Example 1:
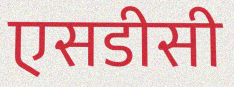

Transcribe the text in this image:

एसडीसी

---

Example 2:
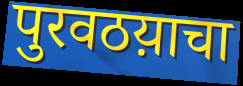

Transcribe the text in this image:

पुरवठय़ाचा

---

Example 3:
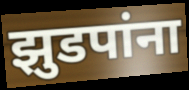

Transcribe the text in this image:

झुडपांना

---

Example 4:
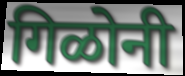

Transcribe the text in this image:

गिळोनी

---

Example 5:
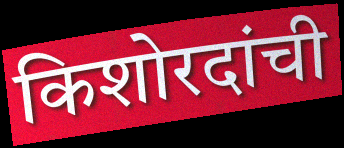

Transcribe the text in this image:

किशोरदांची